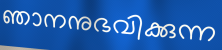
ഞാനനുഭവിക്കുന്ന